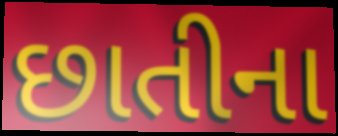
છાતીના